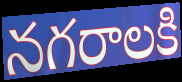
నగరాలకి